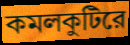
কমলকুটিরে